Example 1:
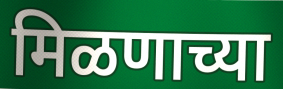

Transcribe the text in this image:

मिळणाच्या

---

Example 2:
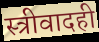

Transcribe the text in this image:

स्त्रीवादही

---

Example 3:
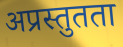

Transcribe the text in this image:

अप्रस्तुतता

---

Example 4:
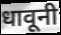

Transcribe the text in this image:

धावूनी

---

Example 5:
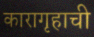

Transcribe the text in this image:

कारागृहाची